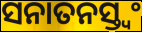
ସନାତନସ୍ତ୍ୱଂ